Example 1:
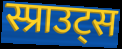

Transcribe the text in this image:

स्प्राउट्स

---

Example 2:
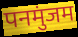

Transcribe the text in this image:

पनमुंजम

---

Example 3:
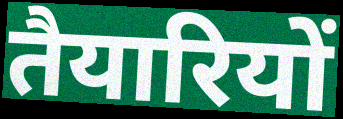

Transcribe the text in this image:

तैयारियों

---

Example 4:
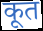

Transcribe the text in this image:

कूत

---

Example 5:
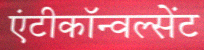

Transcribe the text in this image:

एंटीकॉन्वल्सेंट